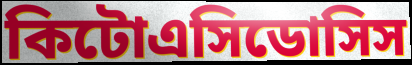
কিটোএসিডোসিস